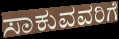
ಸಾಕುವವರಿಗೆ